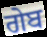
ਗੇਬ